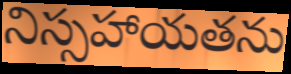
నిస్సహాయతను